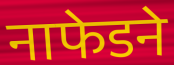
नाफेडने